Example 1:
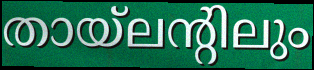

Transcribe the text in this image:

തായ്ലന്റിലും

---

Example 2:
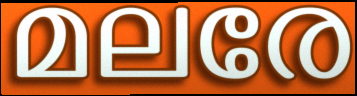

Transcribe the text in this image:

മലരേ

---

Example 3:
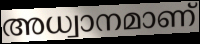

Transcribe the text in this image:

അധ്വാനമാണ്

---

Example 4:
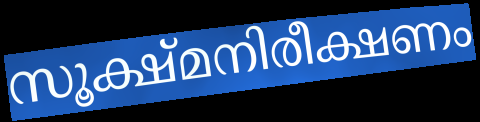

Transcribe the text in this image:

സൂക്ഷ്മനിരീക്ഷണം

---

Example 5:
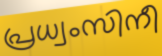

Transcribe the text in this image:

പ്രധ്വംസിനീ